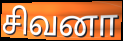
சிவனா